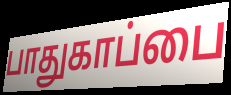
பாதுகாப்பை